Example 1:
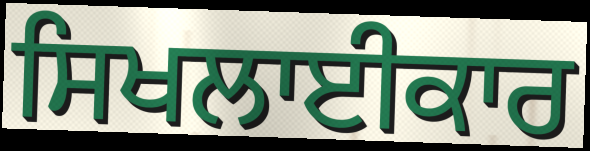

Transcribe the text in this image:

ਸਿਖਲਾਈਕਾਰ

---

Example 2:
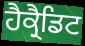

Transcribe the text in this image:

ਹੈਕ੍ਰੈਡਿਟ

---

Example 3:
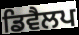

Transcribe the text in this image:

ਡਿਵੈਲਪ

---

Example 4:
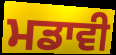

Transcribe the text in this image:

ਮਡਾਵੀ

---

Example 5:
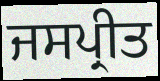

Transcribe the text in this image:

ਜਸਪ੍ਰੀਤ